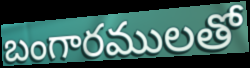
బంగారములతో